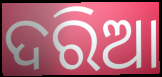
ଦରିଆ